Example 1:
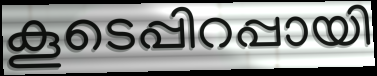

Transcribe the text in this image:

കൂടെപ്പിറപ്പായി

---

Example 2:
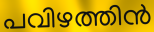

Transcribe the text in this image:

പവിഴത്തിൻ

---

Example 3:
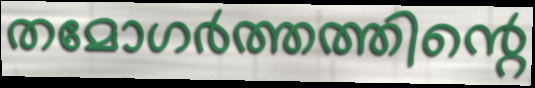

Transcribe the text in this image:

തമോഗർത്തത്തിന്റെ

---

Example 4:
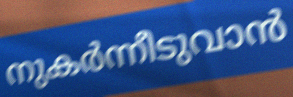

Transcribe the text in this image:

നുകർന്നീടുവാൻ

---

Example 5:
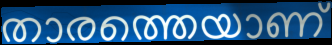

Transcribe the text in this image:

താരത്തെയാണ്